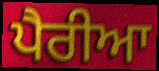
ਪੈਰੀਆ